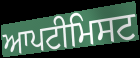
ਆਪਟੀਮਿਸਟ